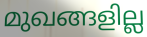
മുഖങ്ങളില്ല